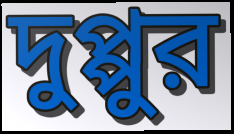
দুপ্পুর